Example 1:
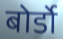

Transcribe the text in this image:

बोर्डो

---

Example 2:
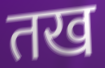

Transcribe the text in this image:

तख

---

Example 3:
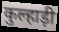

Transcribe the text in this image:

कुल्हाड़ी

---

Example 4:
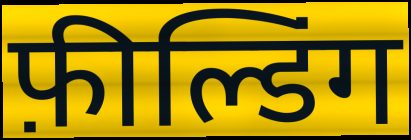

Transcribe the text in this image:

फ़ील्डिंग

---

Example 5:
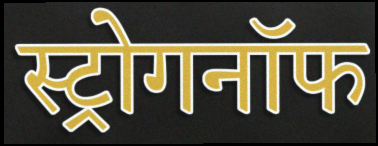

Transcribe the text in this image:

स्ट्रोगनॉफ